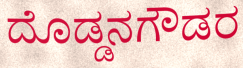
ದೊಡ್ಡನಗೌಡರ